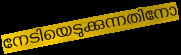
നേടിയെടുക്കുന്നതിനോ